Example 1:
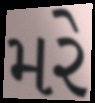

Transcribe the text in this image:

મરે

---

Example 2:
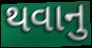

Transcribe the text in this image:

થવાનુ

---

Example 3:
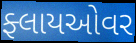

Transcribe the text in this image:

ફ્લાયઓવર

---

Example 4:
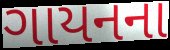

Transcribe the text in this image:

ગાયનના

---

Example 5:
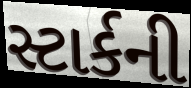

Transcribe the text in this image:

સ્ટાર્કની